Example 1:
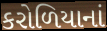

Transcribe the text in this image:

કરોળિયાનાં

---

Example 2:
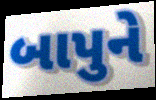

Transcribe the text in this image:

બાપુને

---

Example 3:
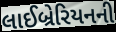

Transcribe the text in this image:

લાઈબ્રેરિયનની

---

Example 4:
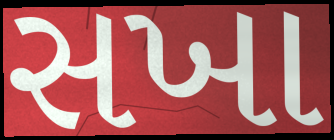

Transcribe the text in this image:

સખા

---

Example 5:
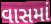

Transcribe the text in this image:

વાસમાં